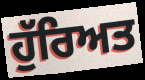
ਹੁੱਰਿਅਤ